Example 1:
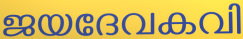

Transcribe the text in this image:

ജയദേവകവി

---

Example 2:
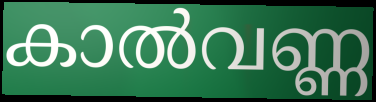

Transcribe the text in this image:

കാൽവണ്ണ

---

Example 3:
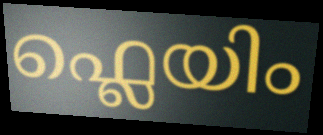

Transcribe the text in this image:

ഫ്ലെയിം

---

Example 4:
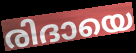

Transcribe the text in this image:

രിദായെ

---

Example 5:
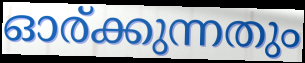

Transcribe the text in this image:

ഓര്ക്കുന്നതും